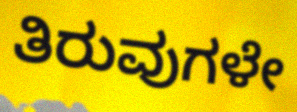
ತಿರುವುಗಳೇ